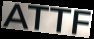
ATTF